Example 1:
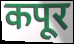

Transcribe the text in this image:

कपूर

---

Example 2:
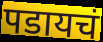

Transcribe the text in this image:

पडायचं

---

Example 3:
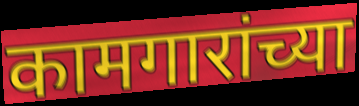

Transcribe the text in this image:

कामगारांच्या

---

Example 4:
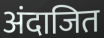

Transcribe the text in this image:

अंदाजित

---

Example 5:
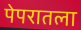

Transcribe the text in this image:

पेपरातला